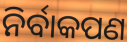
ନିର୍ବାକପଣ